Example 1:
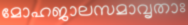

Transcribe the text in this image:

മോഹജാലസമാവൃതാഃ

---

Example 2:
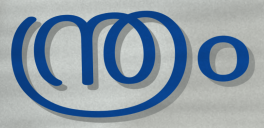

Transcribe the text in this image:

ന്ത്രം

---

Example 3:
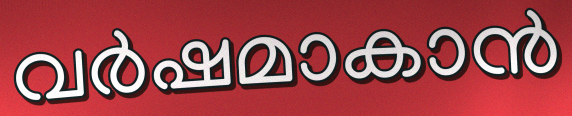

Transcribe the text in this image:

വർഷമാകാൻ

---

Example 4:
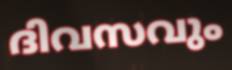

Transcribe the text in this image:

ദിവസവും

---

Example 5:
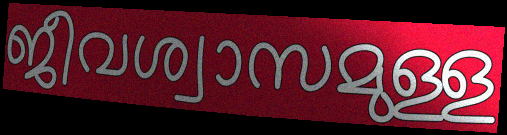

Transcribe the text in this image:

ജീവശ്വാസമുള്ള